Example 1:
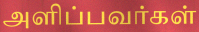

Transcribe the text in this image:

அளிப்பவர்கள்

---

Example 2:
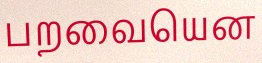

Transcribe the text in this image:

பறவையென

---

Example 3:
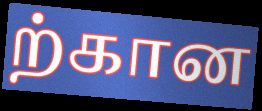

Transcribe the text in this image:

ற்கான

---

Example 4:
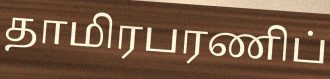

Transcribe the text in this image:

தாமிரபரணிப்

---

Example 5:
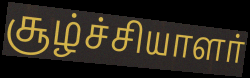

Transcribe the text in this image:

சூழ்ச்சியாளர்